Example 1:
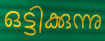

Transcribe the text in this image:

ഒട്ടിക്കുന്നു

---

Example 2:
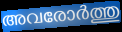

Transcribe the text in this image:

അവരോർത്തു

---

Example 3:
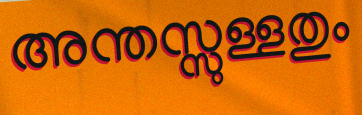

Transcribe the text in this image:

അന്തസ്സുള്ളതും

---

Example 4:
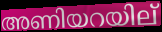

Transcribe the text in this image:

അണിയറയില്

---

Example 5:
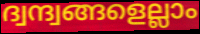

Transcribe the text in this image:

ദ്വന്ദ്വങ്ങളെല്ലാം